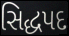
સિદ્ધપદ